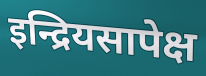
इन्द्रियसापेक्ष